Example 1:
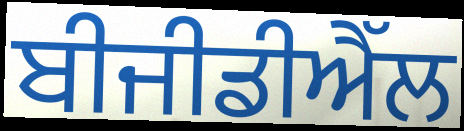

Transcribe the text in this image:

ਬੀਜੀਡੀਐੱਲ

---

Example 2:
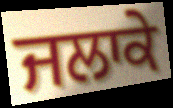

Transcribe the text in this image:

ਜਲਾਕੇ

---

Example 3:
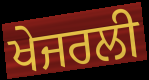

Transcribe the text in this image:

ਖੇਜਰਲੀ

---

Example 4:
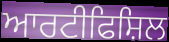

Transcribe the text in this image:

ਆਰਟੀਫਿਸ਼ਿਲ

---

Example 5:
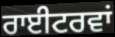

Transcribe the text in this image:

ਰਾਈਟਰਵਾਂ